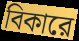
বিকারে